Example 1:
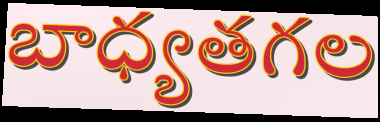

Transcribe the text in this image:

బాధ్యతగల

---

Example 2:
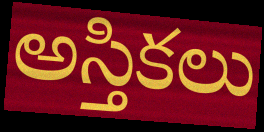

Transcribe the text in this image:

అస్తికలు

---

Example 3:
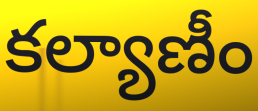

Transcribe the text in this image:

కల్యాణీం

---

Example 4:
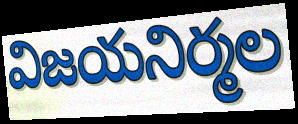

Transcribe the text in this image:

విజయనిర్మల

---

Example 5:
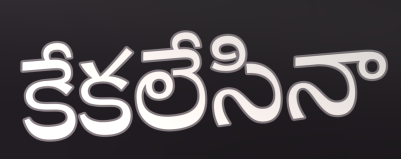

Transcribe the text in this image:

కేకలేసినా